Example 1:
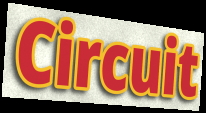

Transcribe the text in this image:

Circuit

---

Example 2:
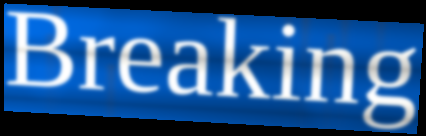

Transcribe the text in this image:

Breaking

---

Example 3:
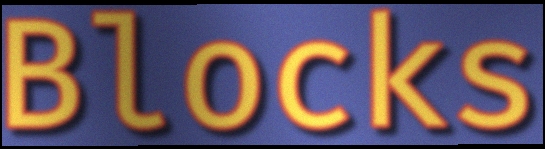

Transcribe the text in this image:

Blocks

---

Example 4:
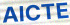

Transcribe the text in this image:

AICTE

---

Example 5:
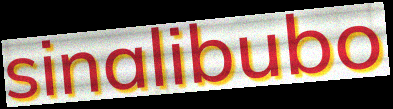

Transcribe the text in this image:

sinalibubo